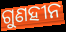
ଗୁଣହୀନ